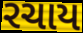
રચાય